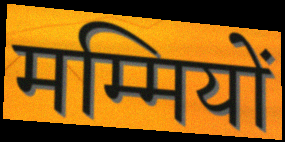
मम्मियों